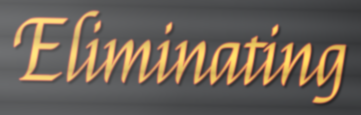
Eliminating